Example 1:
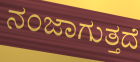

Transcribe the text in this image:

ನಂಜಾಗುತ್ತದೆ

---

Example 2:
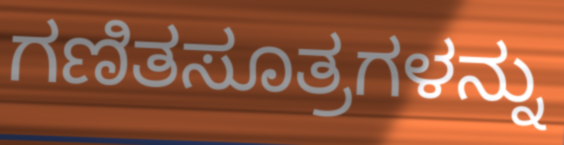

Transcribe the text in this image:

ಗಣಿತಸೂತ್ರಗಳನ್ನು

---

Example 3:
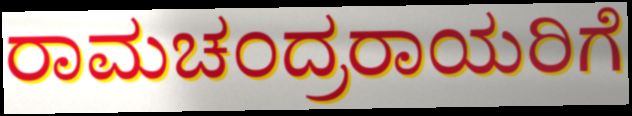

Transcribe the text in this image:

ರಾಮಚಂದ್ರರಾಯರಿಗೆ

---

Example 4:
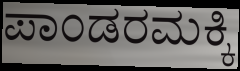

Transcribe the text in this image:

ಪಾಂಡರಮಕ್ಕಿ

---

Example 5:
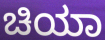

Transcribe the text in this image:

ಚಿಯಾ